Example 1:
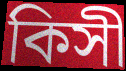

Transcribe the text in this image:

কিসী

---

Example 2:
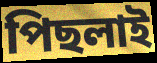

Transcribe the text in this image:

পিছলাই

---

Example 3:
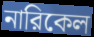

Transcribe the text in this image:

নারিকেল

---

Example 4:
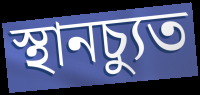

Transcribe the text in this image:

স্থানচ্যুত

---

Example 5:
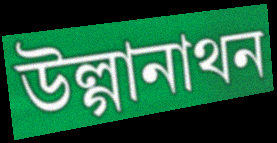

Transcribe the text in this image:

উল্গানাথন